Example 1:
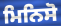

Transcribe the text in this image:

ਮਿਨਿਸੋ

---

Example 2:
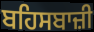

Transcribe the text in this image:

ਬਹਿਸਬਾਜ਼ੀ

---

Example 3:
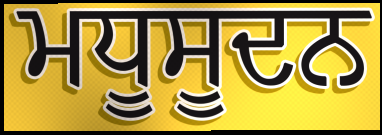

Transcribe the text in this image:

ਮਧੂਸੂਦਨ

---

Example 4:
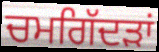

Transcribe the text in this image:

ਚਮਗਿੱਦੜਾਂ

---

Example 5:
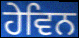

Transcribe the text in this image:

ਹੇਵਿਨ